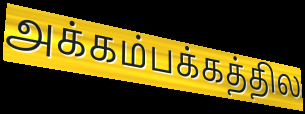
அக்கம்பக்கத்தில